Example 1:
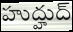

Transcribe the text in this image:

హుద్హుద్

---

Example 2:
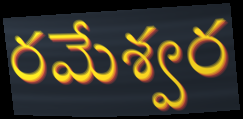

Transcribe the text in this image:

రమేశ్వర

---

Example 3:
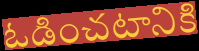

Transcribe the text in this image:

ఓడించటానికి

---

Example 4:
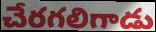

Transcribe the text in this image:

చేరగలిగాడు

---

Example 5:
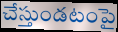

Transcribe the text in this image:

చేస్తుండటంపై